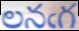
లనఁగ